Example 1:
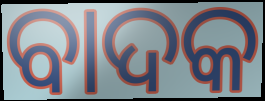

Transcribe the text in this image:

ବାଦକ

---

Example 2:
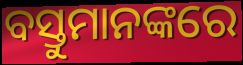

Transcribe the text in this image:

ବସ୍ତୁମାନଙ୍କରେ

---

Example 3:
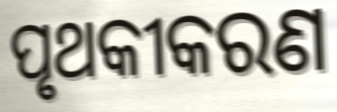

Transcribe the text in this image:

ପୃଥକୀକରଣ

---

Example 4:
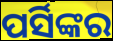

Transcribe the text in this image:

ପର୍ସିଙ୍କର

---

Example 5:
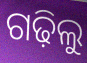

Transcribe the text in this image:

ଗଢ଼ିଲୁ